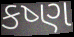
કષ્ણ